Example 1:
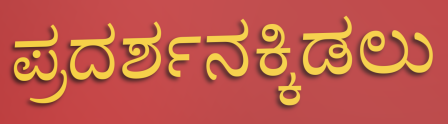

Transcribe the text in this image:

ಪ್ರದರ್ಶನಕ್ಕಿಡಲು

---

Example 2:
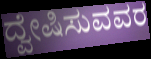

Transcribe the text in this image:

ದ್ವೇಷಿಸುವವರ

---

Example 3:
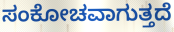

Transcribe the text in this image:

ಸಂಕೋಚವಾಗುತ್ತದೆ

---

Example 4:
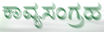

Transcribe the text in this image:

ಕಾವ್ಯಸಂಗ್ರಹ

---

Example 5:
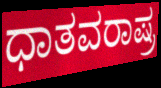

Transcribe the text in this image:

ಧಾತವರಾಷ್ರ